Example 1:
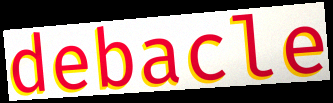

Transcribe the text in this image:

debacle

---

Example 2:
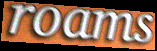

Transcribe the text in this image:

roams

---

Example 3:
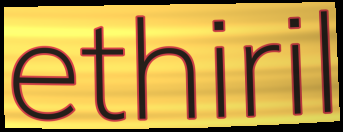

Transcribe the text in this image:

ethiril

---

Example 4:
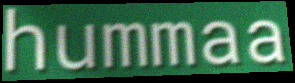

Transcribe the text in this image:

hummaa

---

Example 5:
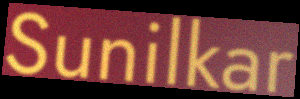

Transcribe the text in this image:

Sunilkar